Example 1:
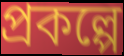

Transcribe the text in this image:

প্রকল্পে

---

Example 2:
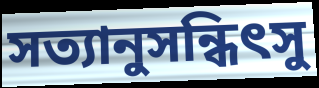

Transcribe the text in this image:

সত্যানুসন্ধিৎসু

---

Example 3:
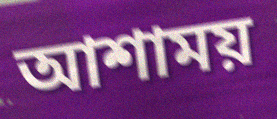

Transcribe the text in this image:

আশাময়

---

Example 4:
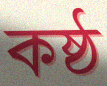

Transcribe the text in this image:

কষ্ঠ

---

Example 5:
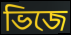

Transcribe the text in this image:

ভিজে